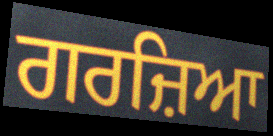
ਗਰਜ਼ਿਆ